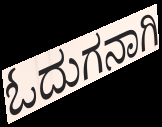
ಓದುಗನಾಗಿ